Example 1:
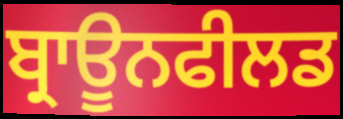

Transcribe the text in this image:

ਬ੍ਰਾਊਨਫੀਲਡ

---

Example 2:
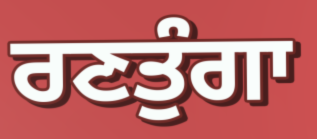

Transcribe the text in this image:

ਰਣਤੁੰਗਾ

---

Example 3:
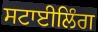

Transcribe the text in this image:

ਸਟਾਈਲਿੰਗ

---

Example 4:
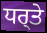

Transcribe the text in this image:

ਧਰ੍ਤੇ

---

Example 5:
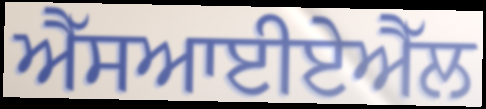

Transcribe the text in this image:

ਐੱਸਆਈਏਐੱਲ